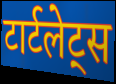
टार्टलेट्स